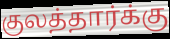
குலத்தார்க்கு